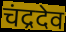
चंद्रदेव